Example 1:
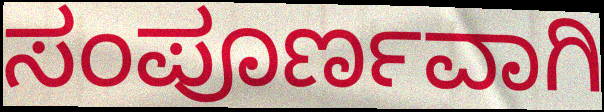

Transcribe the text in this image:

ಸಂಪೂರ್ಣವಾಗಿ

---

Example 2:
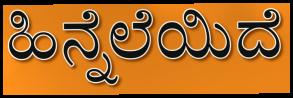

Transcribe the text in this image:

ಹಿನ್ನೆಲೆಯಿದೆ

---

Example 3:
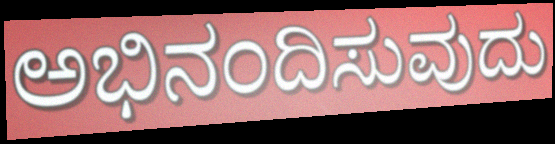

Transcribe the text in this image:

ಅಭಿನಂದಿಸುವುದು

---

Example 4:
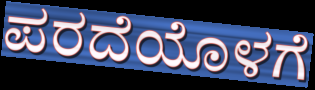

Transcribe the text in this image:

ಪರದೆಯೊಳಗೆ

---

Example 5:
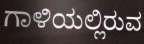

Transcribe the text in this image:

ಗಾಳಿಯಲ್ಲಿರುವ